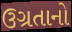
ઉગ્રતાનો